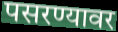
पसरण्यावर